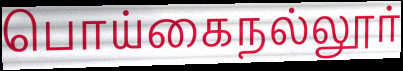
பொய்கைநல்லூர்